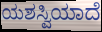
ಯಶಸ್ವಿಯಾದೆ